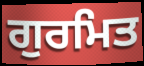
ਗੁਰਮਿਤ